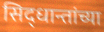
सिद्धान्तांच्या